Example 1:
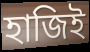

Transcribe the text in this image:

হাজিই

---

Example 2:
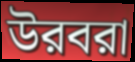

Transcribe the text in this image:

উরবরা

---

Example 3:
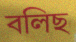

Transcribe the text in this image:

বলিছ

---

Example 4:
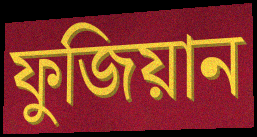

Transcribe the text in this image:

ফুজিয়ান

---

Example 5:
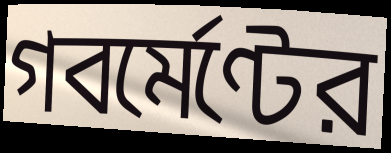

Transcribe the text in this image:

গবর্মেণ্টের